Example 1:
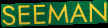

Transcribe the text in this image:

SEEMAN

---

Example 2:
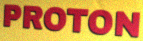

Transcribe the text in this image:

PROTON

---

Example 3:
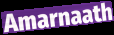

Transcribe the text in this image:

Amarnaath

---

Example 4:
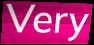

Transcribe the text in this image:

Very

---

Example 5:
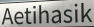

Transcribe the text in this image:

Aetihasik